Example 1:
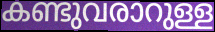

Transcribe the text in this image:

കണ്ടുവരാറുള്ള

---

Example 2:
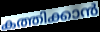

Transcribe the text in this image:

കത്തിക്കാൻ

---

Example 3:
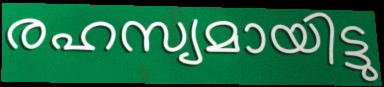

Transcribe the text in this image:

രഹസ്യമായിട്ടു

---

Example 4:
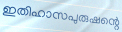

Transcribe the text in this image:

ഇതിഹാസപുരുഷന്റെ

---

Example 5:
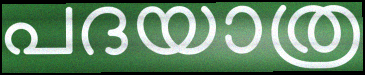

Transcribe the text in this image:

പദയാത്ര